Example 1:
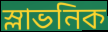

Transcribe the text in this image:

স্লাভনিক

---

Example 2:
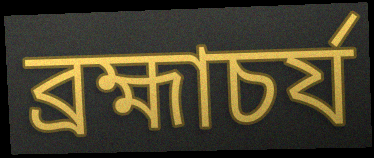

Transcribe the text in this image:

ব্ৰহ্মাচৰ্য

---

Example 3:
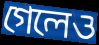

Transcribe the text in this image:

গেলেও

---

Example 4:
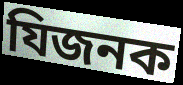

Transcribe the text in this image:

যিজনক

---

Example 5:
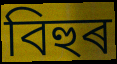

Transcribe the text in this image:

বিহুৰ